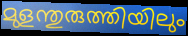
മുളന്തുരുത്തിയിലും